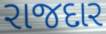
રાજદાર